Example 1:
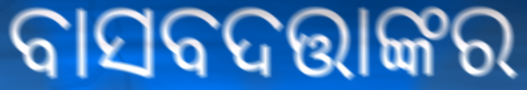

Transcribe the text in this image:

ବାସବଦତ୍ତାଙ୍କର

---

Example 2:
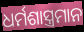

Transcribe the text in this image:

ଧର୍ମଶାସ୍ତ୍ରମାନ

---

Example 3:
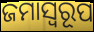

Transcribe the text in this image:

ଜମାସ୍ବରୂପ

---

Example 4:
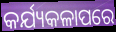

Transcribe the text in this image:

କର୍ଯ୍ୟକଳାପରେ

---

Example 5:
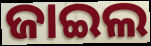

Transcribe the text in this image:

ଜାଇଲ